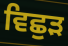
ਵਿਛੁੜ